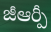
జీఆర్పీ